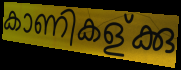
കാണികള്ക്കു